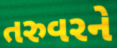
તરુવરને